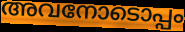
അവനോടൊപ്പം